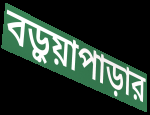
বড়ুয়াপাড়ার